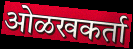
ओळखकर्ता